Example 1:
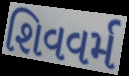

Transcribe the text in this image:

શિવવર્મ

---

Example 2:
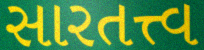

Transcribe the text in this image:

સારતત્ત્વ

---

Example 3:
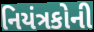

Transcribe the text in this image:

નિયંત્રકોની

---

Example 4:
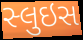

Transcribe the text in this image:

સ્લુઇસ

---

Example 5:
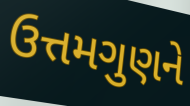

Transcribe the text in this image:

ઉત્તમગુણને